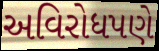
અવિરોધપણે